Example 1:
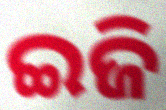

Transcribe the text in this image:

ଇଜି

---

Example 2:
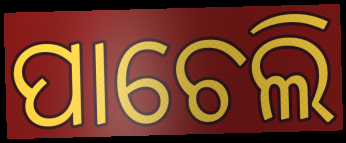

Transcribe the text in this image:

ପାଚେଲି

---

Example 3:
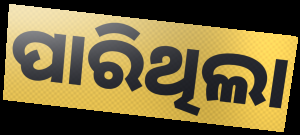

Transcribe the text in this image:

ପାରିଥିଲା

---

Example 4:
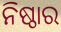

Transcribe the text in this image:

ନିଷ୍ଠାର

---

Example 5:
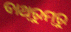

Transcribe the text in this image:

ବାଥ୍‌ରୁମ୍‌ରୁ